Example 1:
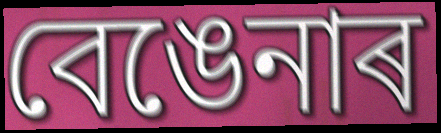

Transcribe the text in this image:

বেঙেনাৰ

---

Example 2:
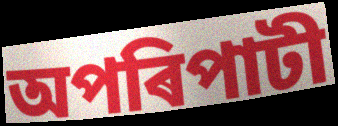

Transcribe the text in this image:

অপৰিপাটী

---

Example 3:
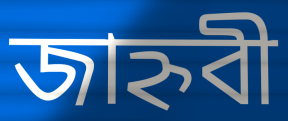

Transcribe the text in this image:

জাহ্নবী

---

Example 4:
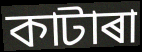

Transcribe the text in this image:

কাটাৰা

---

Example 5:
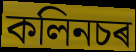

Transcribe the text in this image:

কলিনচৰ